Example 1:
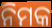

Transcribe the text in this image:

ନିମକ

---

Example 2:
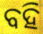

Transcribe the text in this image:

ବହି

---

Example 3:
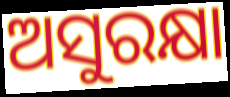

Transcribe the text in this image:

ଅସୁରକ୍ଷା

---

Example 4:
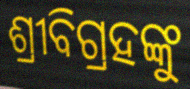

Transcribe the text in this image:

ଶ୍ରୀବିଗ୍ରହଙ୍କୁ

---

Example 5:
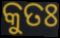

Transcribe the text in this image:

କୁତଃ